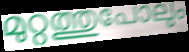
മുറ്റത്തുപോലും